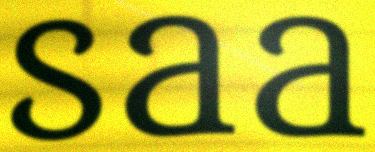
saa